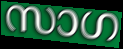
സാഗ